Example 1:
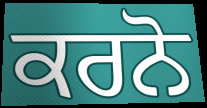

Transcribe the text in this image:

ਕਰਨੋ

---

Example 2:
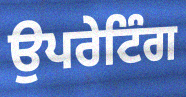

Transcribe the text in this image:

ਉਪਰੇਟਿੰਗ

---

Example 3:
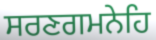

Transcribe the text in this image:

ਸਰਣਗਮਨੇਹਿ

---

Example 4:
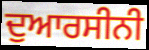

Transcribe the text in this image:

ਦੁਆਰਸੀਨੀ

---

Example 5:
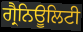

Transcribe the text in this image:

ਗ੍ਰੈਨਿਊਲਿਟੀ